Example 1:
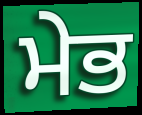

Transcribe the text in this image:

ਮੇਭ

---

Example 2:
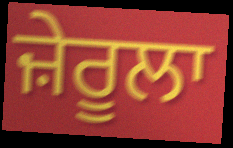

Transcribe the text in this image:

ਜ਼ੇਰੂਲਾ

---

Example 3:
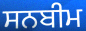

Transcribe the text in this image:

ਸਨਬੀਮ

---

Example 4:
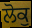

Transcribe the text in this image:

ਲੋਕੁ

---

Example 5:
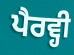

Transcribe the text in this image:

ਪੈਰਵ੍ਹੀ